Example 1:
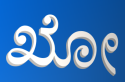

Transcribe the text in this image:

ಖೋ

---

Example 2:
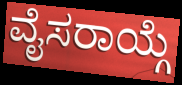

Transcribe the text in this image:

ವೈಸರಾಯ್ಗೆ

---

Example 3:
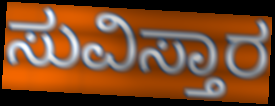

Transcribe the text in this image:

ಸುವಿಸ್ತಾರ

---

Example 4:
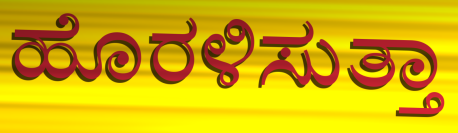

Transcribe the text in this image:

ಹೊರಳಿಸುತ್ತಾ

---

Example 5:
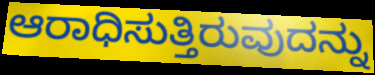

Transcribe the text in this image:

ಆರಾಧಿಸುತ್ತಿರುವುದನ್ನು